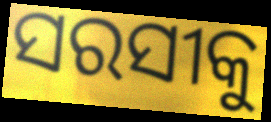
ସରସୀକୁ